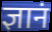
ज्ञानं